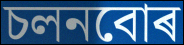
চলনবোৰ